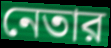
নেতার